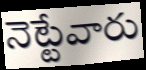
నెట్టేవారు